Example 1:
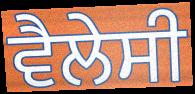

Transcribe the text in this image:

ਵੈਲੇਸੀ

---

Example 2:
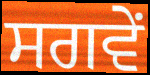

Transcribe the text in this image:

ਸਗਵੇਂ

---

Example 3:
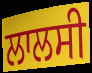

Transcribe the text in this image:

ਲਾਲਸੀ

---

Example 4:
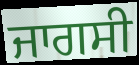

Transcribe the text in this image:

ਜਾਗਸੀ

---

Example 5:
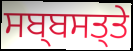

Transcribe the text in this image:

ਸਬ੍ਬਸਤ੍ਤੇ